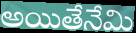
అయితేనేమి